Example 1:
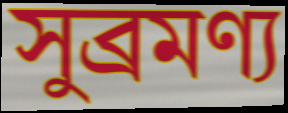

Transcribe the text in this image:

সুব্রমণ্য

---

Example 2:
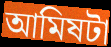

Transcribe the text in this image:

আমিষটা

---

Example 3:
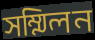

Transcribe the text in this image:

সম্মিলন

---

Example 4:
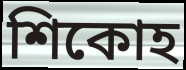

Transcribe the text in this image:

শিকোহ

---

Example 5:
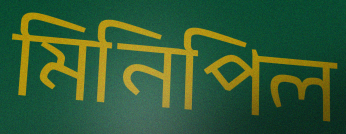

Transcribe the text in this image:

মিনিপিল